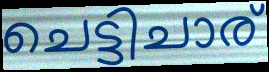
ചെട്ടിചാര്